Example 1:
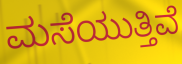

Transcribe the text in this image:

ಮಸೆಯುತ್ತಿವೆ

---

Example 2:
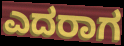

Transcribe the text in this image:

ಎದರಾಗ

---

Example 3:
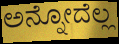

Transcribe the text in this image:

ಅನ್ನೋದೆಲ್ಲ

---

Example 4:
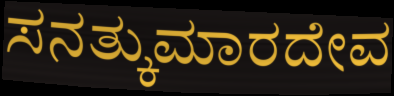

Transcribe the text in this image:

ಸನತ್ಕುಮಾರದೇವ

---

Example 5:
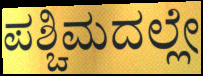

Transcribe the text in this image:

ಪಶ್ಚಿಮದಲ್ಲೇ